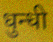
धुन्धी